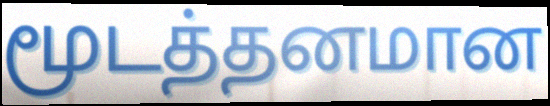
மூடத்தனமான